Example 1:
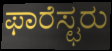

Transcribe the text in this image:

ಫಾರೆಸ್ಟರು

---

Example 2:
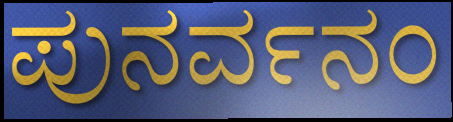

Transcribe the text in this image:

ಪುನರ್ವನಂ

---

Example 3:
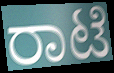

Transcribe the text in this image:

ರಾಟೆ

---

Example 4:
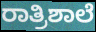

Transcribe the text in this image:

ರಾತ್ರಿಶಾಲೆ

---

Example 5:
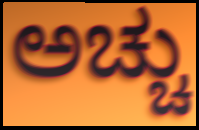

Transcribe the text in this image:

ಅಚ್ಚು